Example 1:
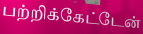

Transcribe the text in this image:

பற்றிக்கேட்டேன்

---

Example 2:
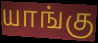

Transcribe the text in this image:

யாங்கு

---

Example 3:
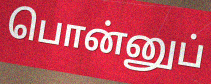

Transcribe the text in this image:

பொன்னுப்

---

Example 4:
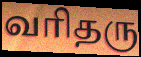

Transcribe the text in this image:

வரிதரு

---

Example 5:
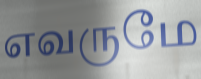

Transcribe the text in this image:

எவருமே